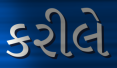
કરીલે